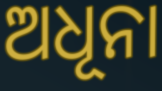
ଅଧୂନା